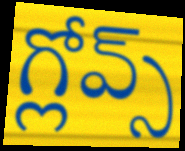
గ్లోవ్స్